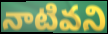
నాటివని